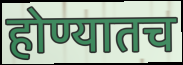
होण्यातच